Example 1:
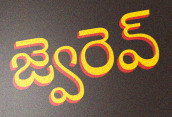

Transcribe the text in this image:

జ్వెరెవ్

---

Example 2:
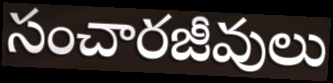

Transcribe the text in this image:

సంచారజీవులు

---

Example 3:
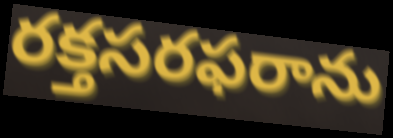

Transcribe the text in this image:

రక్తసరఫరాను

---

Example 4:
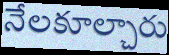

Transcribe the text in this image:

నేలకూల్చారు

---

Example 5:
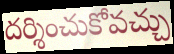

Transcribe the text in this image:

దర్శించుకోవచ్చు